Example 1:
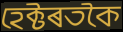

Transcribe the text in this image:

হেক্টৰতকৈ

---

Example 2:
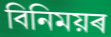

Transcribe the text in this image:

বিনিময়ৰ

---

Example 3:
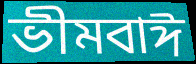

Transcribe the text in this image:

ভীমবাঈ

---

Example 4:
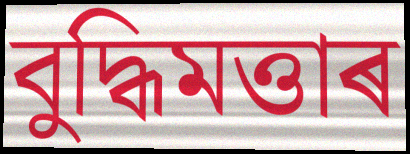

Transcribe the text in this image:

বুদ্ধিমত্তাৰ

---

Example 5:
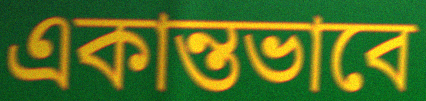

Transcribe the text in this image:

একান্তভাবে